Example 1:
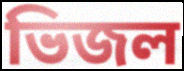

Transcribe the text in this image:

ভিজল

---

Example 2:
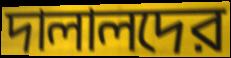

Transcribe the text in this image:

দালালদের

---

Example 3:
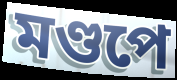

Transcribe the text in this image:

মণ্ডপে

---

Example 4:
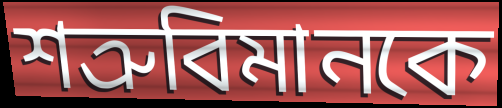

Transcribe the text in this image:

শত্রুবিমানকে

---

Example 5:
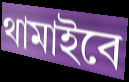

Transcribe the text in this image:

থামাইবে